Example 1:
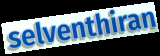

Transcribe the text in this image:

selventhiran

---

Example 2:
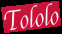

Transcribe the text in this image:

Tololo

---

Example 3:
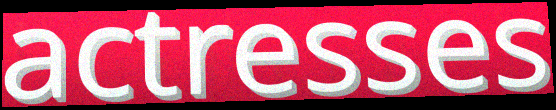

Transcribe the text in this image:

actresses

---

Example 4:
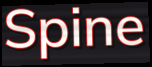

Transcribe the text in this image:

Spine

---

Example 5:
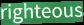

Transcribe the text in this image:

righteous